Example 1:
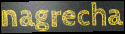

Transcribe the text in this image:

nagrecha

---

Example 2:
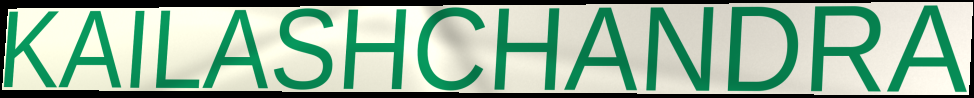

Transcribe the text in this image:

KAILASHCHANDRA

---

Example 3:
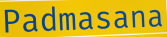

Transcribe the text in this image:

Padmasana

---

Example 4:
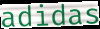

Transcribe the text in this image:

adidas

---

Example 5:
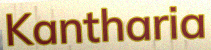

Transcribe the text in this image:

Kantharia